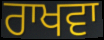
ਰਾਖਵਾ